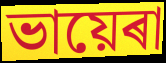
ভায়েৰা